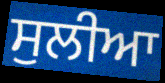
ਸੁਲੀਆ